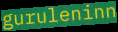
guruleninn